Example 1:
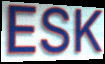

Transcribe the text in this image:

ESK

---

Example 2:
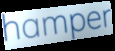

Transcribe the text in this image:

hamper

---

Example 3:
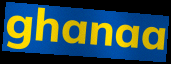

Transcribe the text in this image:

ghanaa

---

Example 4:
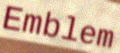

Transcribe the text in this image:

Emblem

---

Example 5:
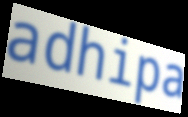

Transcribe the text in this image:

adhipa